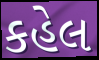
કહેલ